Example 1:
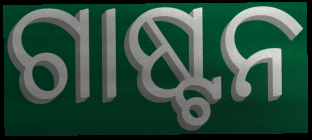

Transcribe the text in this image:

ଗାଷ୍ଟନ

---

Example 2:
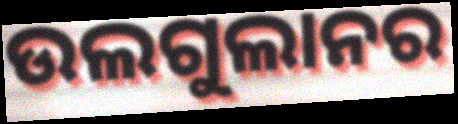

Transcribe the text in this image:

ଉଲଗୁଲାନର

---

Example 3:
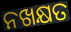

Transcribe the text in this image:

ନଖକ୍ଷତ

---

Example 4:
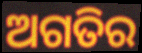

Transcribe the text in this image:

ଅଗତିର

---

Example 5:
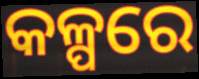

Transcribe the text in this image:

କଳ୍ପରେ